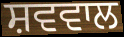
ਸ਼ਵਵਾਲ